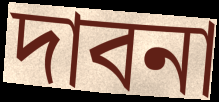
দাবনা